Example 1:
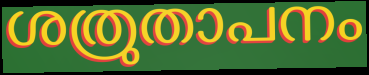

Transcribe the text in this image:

ശത്രുതാപനം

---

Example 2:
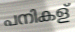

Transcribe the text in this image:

പനികള്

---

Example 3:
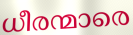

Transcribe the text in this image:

ധീരന്മാരെ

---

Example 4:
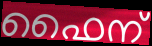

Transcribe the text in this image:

ഫൈന്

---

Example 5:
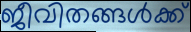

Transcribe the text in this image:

ജീവിതങ്ങൾക്ക്